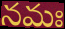
నమః